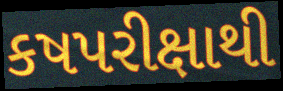
કષપરીક્ષાથી